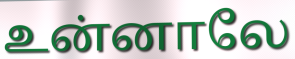
உன்னாலே